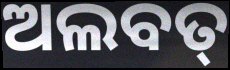
ଅଲବତ୍